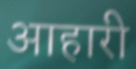
आहारी